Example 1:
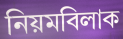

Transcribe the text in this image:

নিয়মবিলাক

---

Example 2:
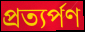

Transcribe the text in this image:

প্ৰত্যৰ্পণ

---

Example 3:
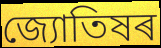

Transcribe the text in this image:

জ্যোতিষৰ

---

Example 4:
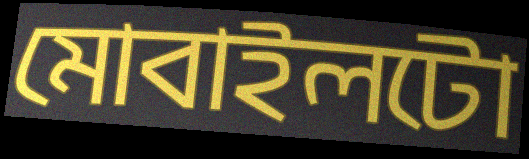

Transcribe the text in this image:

মোবাইলটো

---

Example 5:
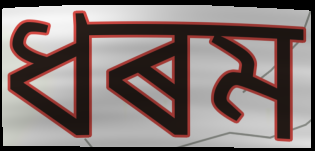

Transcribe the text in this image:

ধৰম